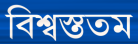
বিশ্বস্ততম